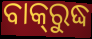
ବାକ୍‌ରୁଦ୍ଧ